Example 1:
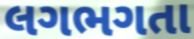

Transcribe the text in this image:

લગભગતા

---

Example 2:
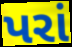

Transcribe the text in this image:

પરાં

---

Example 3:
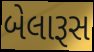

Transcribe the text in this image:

બેલારૂસ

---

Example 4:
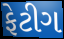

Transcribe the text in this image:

ફેટીગ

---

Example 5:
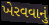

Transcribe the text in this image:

ખેરવવાનું